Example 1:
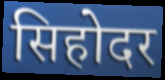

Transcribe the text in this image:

सिहोदर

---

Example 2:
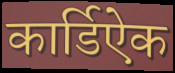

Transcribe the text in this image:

कार्डिऐक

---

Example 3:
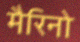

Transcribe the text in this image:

मैरिनो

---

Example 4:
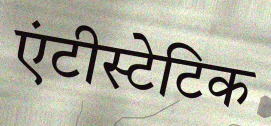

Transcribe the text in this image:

एंटीस्टेटिक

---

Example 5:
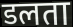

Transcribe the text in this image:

डलता